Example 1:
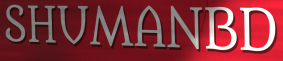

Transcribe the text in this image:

SHUMANBD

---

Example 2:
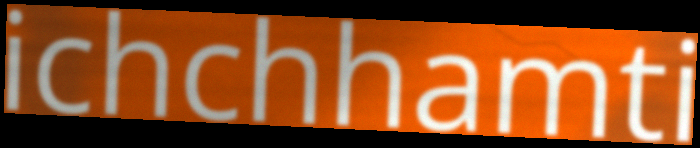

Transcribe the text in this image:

ichchhamti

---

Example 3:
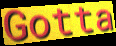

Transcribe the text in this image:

Gotta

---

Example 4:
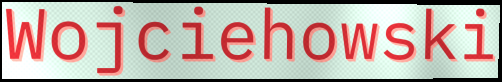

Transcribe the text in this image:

Wojciehowski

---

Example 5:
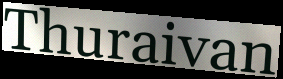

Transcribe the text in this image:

Thuraivan